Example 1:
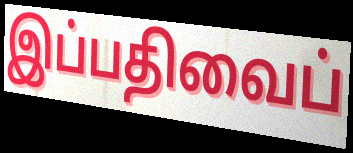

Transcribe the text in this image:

இப்பதிவைப்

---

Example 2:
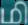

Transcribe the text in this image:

மி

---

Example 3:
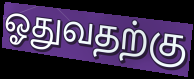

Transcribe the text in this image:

ஓதுவதற்கு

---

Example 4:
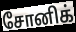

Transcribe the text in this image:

சோனிக்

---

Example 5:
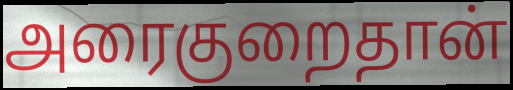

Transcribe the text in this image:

அரைகுறைதான்